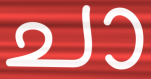
ചാ